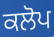
ਕਲੋਪ